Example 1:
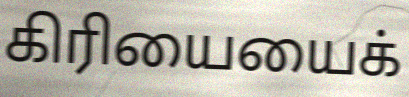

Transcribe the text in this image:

கிரியையைக்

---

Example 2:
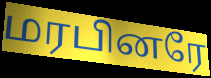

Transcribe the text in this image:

மரபினரே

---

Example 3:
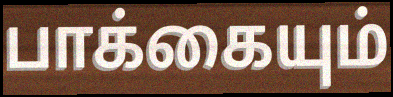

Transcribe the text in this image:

பாக்கையும்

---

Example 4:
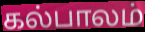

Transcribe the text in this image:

கல்பாலம்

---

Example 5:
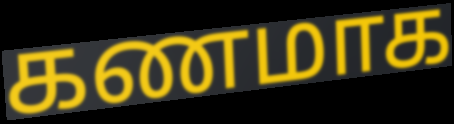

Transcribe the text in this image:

கணமாக